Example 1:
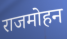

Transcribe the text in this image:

राजमोहन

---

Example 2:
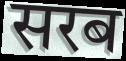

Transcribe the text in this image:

सरब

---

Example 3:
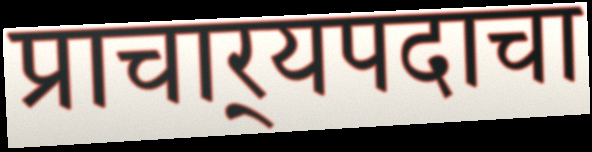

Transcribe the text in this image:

प्राचार्यपदाचा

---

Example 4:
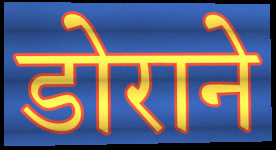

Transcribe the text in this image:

डोराने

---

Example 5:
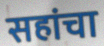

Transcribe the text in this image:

सहांचा